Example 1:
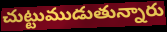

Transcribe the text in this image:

చుట్టుముడుతున్నారు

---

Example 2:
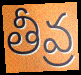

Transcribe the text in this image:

తీవ్ర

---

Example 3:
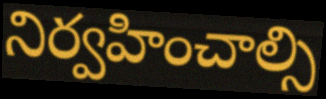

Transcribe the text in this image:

నిర్వహించాల్సి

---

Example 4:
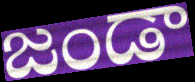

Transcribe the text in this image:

జండా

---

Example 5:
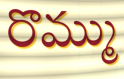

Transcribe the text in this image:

రొమ్ము